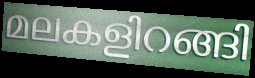
മലകളിറങ്ങി